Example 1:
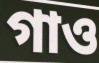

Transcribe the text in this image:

গাও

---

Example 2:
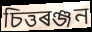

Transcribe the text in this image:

চিত্তৰঞ্জন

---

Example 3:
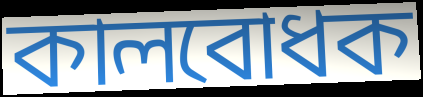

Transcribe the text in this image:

কালবোধক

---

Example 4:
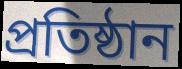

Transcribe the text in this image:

প্ৰতিষ্ঠান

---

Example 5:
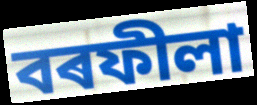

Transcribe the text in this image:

বৰফীলা